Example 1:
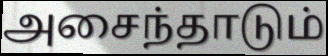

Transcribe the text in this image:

அசைந்தாடும்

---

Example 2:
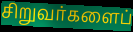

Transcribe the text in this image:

சிறுவர்களைப்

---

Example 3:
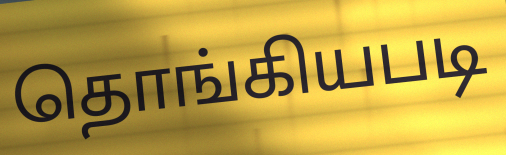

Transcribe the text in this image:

தொங்கியபடி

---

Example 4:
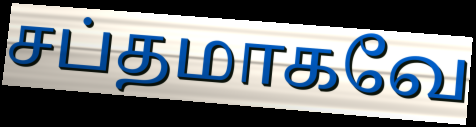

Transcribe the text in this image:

சப்தமாகவே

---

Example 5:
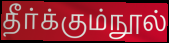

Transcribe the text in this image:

தீர்க்கும்நூல்